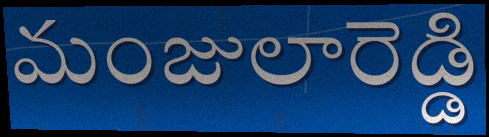
మంజులారెడ్డి